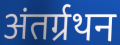
अंतर्ग्रथन